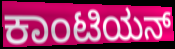
ಕಾಂಟಿಯನ್